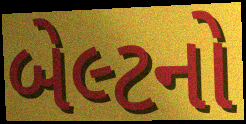
બેલ્ટનો